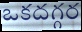
ఒకదగ్గర